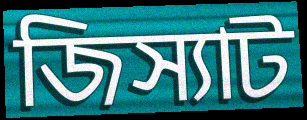
জিস্যাট